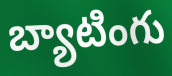
బ్యాటింగు